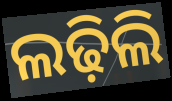
ଲଢ଼ିଲି